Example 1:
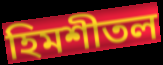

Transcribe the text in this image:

হিমশীতল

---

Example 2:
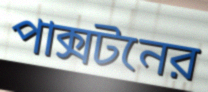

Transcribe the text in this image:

পাক্সটনের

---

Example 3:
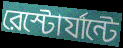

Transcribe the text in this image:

রেস্টোর্যান্টে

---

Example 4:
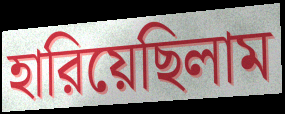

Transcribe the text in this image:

হারিয়েছিলাম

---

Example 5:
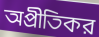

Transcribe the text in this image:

অপ্রীতিকর